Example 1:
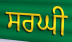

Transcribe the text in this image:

ਸਰਘੀ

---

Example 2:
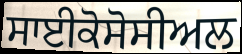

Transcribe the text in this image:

ਸਾਈਕੋਸੋਸੀਅਲ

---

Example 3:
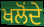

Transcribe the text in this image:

ਖਲੋਂਦੇ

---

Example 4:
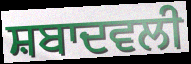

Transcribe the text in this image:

ਸ਼ਬਾਦਵਲੀ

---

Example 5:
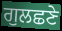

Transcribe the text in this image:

ਗੁਲਛਣੇ